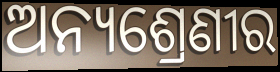
ଅନ୍ୟଶ୍ରେଣୀର